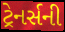
ટ્રેનર્સની